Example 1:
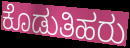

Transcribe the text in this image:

ಕೊಡುತಿಹರು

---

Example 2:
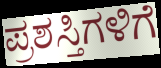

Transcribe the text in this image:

ಪ್ರಶಸ್ತಿಗಳಿಗೆ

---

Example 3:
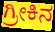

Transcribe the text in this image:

ಗ್ರೀಕಿನ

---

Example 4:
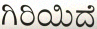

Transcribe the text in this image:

ಗಿರಿಯಿದೆ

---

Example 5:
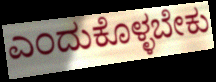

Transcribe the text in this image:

ಎಂದುಕೊಳ್ಳಬೇಕು